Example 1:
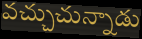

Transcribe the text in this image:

వచ్చుచున్నాడు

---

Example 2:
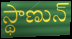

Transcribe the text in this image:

స్థాణున్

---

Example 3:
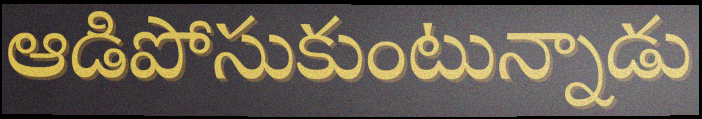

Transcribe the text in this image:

ఆడిపోసుకుంటున్నాడు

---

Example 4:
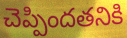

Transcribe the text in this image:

చెప్పిందతనికి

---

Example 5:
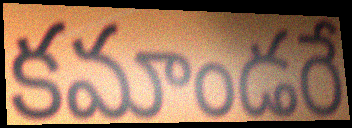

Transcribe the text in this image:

కమాండరే